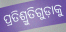
ପ୍ରତିଶ୍ରୁତିଗୁଡ଼ାକୁ